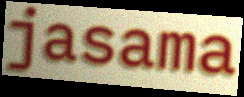
jasama